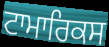
ਟਾਮਾਰਿਕਸ